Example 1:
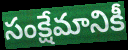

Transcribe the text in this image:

సంక్షేమానికీ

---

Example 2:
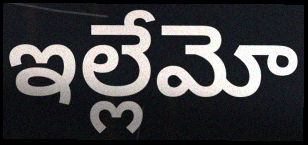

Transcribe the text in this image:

ఇల్లేమో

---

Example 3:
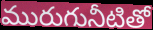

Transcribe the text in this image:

మురుగునీటితో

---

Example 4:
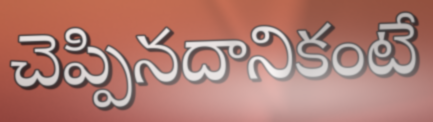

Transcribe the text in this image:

చెప్పినదానికంటే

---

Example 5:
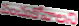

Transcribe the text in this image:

పంచుకోవాలని